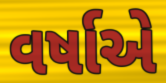
વર્ષાએ